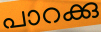
പാറക്കു